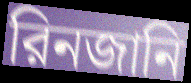
রিনজানি